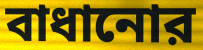
বাধানোর